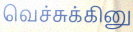
வெச்சுக்கினு